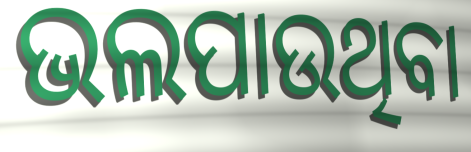
ଭଲପାଉଥିବା